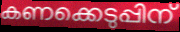
കണക്കെടുപ്പിന്